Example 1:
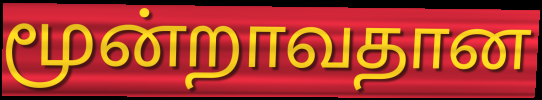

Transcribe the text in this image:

மூன்றாவதான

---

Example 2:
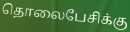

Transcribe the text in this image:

தொலைபேசிக்கு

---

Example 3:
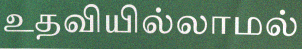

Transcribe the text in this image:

உதவியில்லாமல்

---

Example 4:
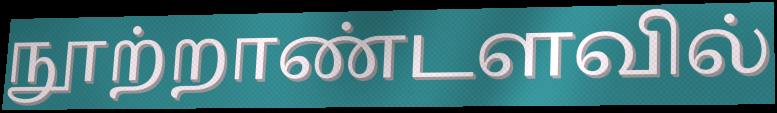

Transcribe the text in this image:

நூற்றாண்டளவில்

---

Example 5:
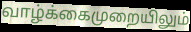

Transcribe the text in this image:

வாழ்க்கைமுறையிலும்